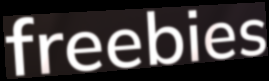
freebies